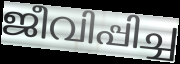
ജീവിപ്പിച്ച